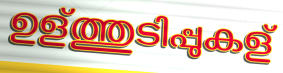
ഉള്ത്തുടിപ്പുകള്